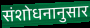
संशोधनानुसार